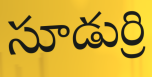
సూడుర్రి